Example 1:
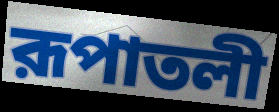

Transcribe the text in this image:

রূপাতলী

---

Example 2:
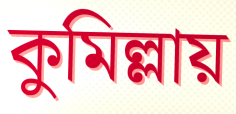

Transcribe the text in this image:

কুমিল্লায়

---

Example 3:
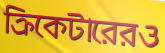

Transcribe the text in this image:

ক্রিকেটারেরও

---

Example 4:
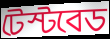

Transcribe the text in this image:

টেস্টবেড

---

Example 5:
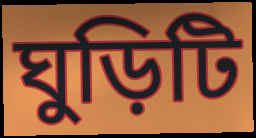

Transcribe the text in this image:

ঘুড়িটি